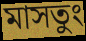
মাসতুং